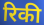
रिकी